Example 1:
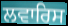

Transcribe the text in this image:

ਲਵਾਰਿਸ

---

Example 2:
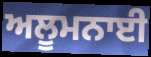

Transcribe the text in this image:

ਅਲੂਮਨਾਈ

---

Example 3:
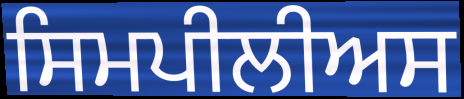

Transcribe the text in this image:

ਸਿਮਪੀਲੀਅਸ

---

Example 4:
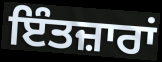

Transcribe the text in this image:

ਇੰਤਜ਼ਾਰਾਂ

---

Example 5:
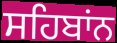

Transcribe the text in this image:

ਸਹਿਬਾਂਨ